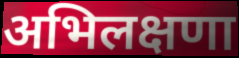
अभिलक्षणा